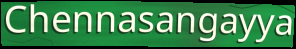
Chennasangayya